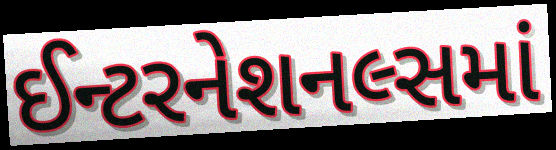
ઈન્ટરનેશનલ્સમાં